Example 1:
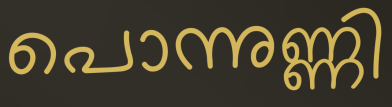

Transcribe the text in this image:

പൊന്നുണ്ണി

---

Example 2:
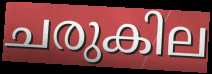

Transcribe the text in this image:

ചരുകില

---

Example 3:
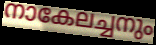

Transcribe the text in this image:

നാകേലച്ചനും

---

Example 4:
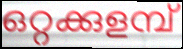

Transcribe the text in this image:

ഒറ്റക്കുളമ്പ്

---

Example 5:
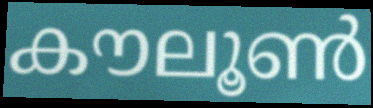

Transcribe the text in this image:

കൗലൂൺ